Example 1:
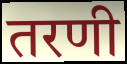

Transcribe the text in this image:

तरणी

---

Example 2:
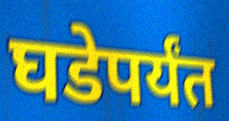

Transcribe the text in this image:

घडेपर्यंत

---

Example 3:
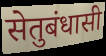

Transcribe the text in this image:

सेतुबंधासी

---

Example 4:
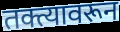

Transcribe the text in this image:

तक्त्यावरून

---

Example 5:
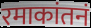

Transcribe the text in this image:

रमाकांतनं